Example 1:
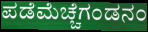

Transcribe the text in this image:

ಪಡೆಮೆಚ್ಚೆಗಂಡನಂ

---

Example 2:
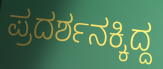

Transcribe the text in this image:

ಪ್ರದರ್ಶನಕ್ಕಿದ್ದ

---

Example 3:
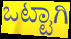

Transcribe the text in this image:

ಒಟ್ಟಾಗಿ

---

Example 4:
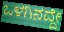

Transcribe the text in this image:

ಒಳಗಿನದ್ದೇ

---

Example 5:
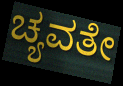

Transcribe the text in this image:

ಚ್ಯವತೇ